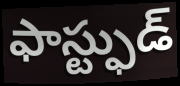
ఫాస్ట్ఫుడ్